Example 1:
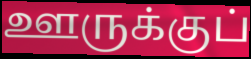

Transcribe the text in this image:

ஊருக்குப்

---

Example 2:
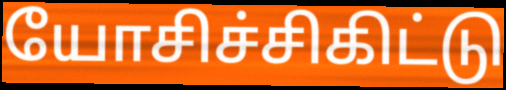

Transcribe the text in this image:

யோசிச்சிகிட்டு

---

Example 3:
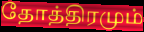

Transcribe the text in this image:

தோத்திரமும்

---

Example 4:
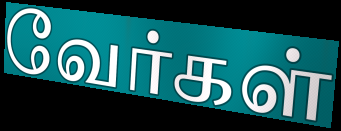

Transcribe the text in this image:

வேர்கள்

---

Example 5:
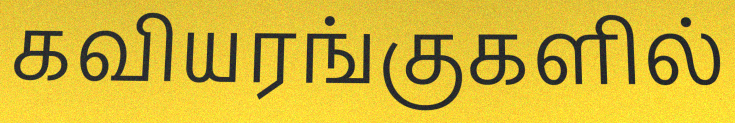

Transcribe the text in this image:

கவியரங்குகளில்